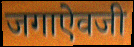
जगाऐवजी